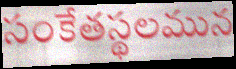
సంకేతస్థలమున